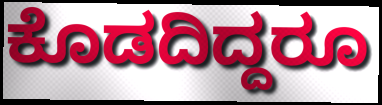
ಕೊಡದಿದ್ದರೂ